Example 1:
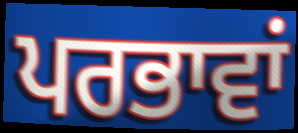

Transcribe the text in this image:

ਪਰਭਾਵਾਂ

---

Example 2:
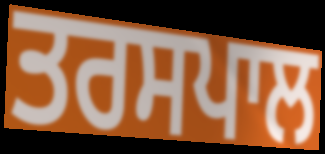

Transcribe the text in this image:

ਤਰਸਪਾਲ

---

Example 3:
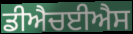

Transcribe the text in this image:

ਡੀਐਚਈਐਸ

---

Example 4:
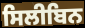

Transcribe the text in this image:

ਸਿਲੀਬਿਨ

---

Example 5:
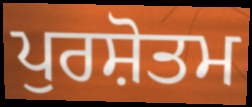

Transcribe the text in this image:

ਪੁਰਸ਼ੋਤਮ